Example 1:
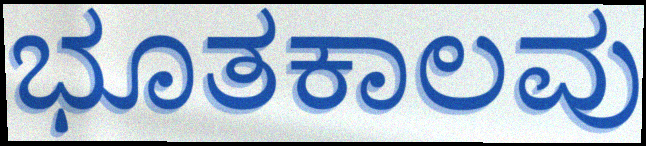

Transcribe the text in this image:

ಭೂತಕಾಲವು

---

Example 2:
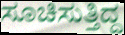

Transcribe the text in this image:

ಸೂಚಿಸುತ್ತಿದ್ದ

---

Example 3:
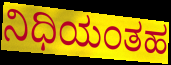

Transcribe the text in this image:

ನಿಧಿಯಂತಹ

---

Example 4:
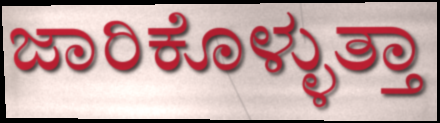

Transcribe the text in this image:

ಜಾರಿಕೊಳ್ಳುತ್ತಾ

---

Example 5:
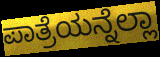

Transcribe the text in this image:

ಪಾತ್ರೆಯನ್ನೆಲ್ಲಾ